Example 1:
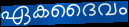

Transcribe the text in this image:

ഏകദൈവം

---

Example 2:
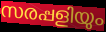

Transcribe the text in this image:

സരപ്പളിയും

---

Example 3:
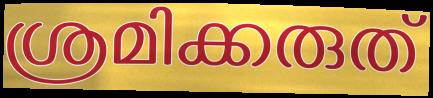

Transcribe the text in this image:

ശ്രമിക്കരുത്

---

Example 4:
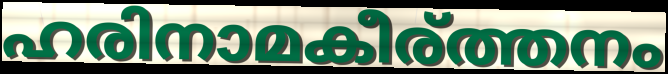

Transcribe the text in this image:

ഹരിനാമകീര്ത്തനം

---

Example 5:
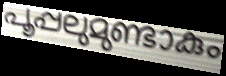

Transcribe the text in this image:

പൂപ്പലുമുണ്ടാകും